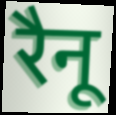
रैनू